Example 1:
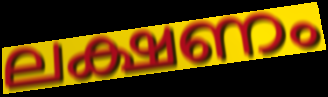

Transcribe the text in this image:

ലക്ഷണം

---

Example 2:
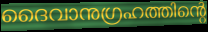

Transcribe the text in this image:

ദൈവാനുഗ്രഹത്തിന്റെ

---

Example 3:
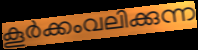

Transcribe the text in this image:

കൂർക്കംവലിക്കുന്ന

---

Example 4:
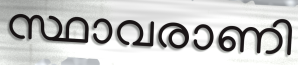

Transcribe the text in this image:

സ്ഥാവരാണി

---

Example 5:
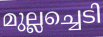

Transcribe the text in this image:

മുല്ലച്ചെടി